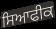
ਸਿਆਫੀਕ